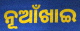
ନୂଆଁଖାଇ